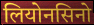
लियोनसिनो